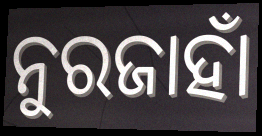
ନୁରଜାହାଁ